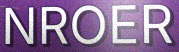
NROER